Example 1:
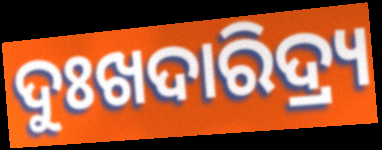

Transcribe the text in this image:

ଦୁଃଖଦାରିଦ୍ର୍ୟ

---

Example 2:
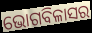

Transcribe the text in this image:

ଭୋଗବିଳାସର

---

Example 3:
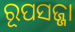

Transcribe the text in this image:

ରୂପସଜ୍ଜା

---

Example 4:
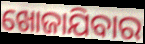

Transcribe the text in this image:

ଖୋଜାଯିବାର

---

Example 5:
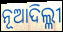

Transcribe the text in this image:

ନୂଆଦିଲ୍ଳୀ